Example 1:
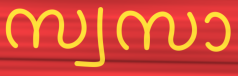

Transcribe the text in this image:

സ്വസാ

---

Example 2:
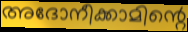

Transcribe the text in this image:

അദോനീക്കാമിന്റെ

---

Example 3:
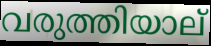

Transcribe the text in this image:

വരുത്തിയാല്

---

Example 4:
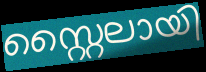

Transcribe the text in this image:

സ്റ്റൈലായി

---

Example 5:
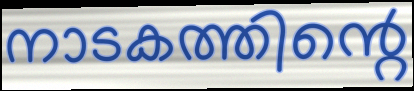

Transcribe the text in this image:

നാടകത്തിന്റെ